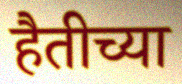
हैतीच्या